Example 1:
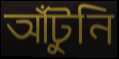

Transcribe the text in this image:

আঁটুনি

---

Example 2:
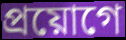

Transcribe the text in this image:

প্রয়োগে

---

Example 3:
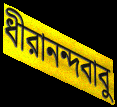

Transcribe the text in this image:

ধীরানন্দবাবু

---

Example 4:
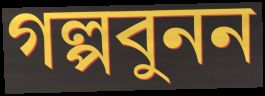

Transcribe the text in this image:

গল্পবুনন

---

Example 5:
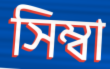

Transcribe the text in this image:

সিম্বা